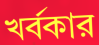
খর্বকার